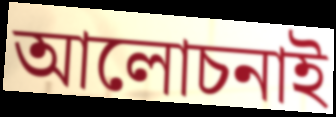
আলোচনাই